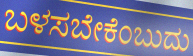
ಬಳಸಬೇಕೆಂಬುದು